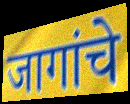
जागांचे